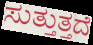
ಸುತ್ತುತ್ತದೆ